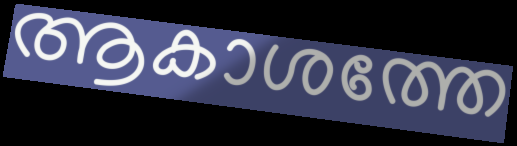
ആകാശത്തേ